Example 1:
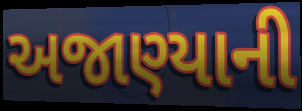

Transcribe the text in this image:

અજાણ્યાની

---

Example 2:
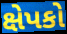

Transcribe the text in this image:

ક્ષેપકો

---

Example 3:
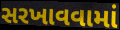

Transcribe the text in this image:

સરખાવવામાં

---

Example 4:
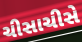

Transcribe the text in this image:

ચીસાચીસે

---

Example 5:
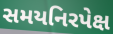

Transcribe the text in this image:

સમયનિરપેક્ષ